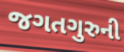
જગતગુરુની